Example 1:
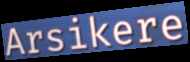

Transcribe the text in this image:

Arsikere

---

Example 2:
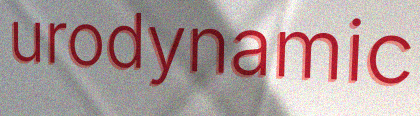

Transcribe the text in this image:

urodynamic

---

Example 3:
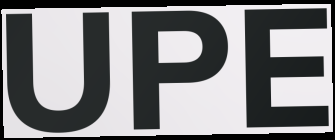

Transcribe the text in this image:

UPE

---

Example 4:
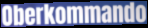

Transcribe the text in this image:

Oberkommando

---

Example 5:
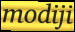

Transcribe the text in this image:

modiji